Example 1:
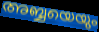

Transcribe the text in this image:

അബ്ബയെയും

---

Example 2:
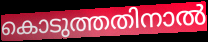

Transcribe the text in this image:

കൊടുത്തതിനാൽ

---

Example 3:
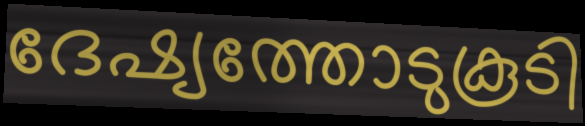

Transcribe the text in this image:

ദേഷ്യത്തോടുകൂടി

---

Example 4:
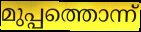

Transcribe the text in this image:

മുപ്പത്തൊന്ന്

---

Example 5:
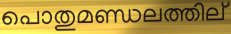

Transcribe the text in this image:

പൊതുമണ്ഡലത്തില്